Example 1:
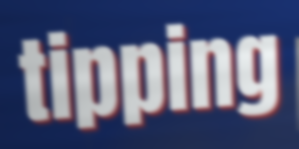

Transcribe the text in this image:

tipping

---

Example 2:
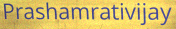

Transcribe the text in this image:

Prashamrativijay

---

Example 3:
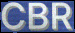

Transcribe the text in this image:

CBR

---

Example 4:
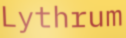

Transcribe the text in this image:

Lythrum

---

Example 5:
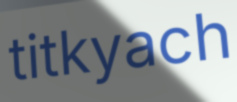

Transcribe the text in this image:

titkyach